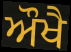
ਔਖੈ